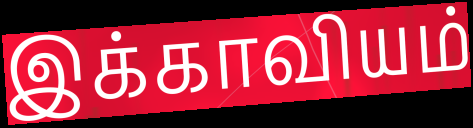
இக்காவியம்